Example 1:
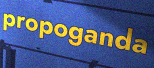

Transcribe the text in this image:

propoganda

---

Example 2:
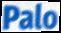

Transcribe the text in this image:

Palo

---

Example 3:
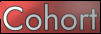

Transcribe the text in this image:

Cohort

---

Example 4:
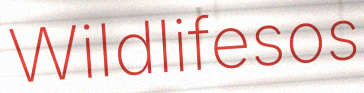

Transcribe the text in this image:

Wildlifesos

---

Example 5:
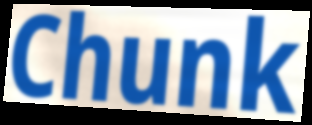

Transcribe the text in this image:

Chunk